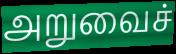
அறுவைச்